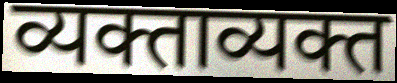
व्यक्ताव्यक्त